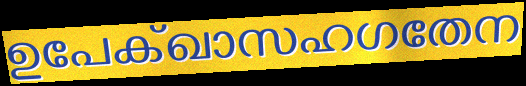
ഉപേക്ഖാസഹഗതേന